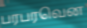
பரபரவென